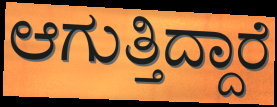
ಆಗುತ್ತಿದ್ದಾರೆ